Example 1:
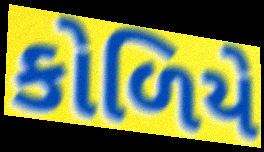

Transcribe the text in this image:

કોળિયે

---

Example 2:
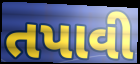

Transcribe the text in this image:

તપાવી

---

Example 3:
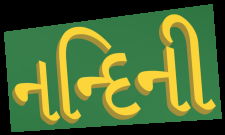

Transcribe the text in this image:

નન્દિની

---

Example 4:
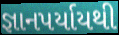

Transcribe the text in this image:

જ્ઞાનપર્યાયથી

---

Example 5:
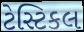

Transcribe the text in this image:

ટેસ્ટિકલ